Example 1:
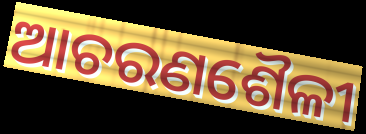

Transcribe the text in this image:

ଆଚରଣଶୈଳୀ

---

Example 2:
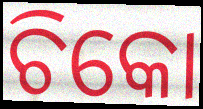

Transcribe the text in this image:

ଚିକୋ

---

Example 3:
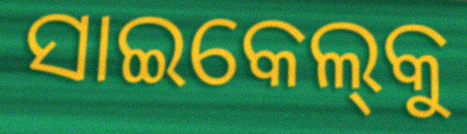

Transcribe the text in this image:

ସାଇକେଲ୍‌କୁ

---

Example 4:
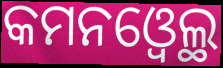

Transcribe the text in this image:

କମନଓ୍ବେଲ୍ଥ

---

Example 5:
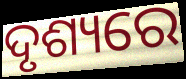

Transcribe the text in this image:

ଦୃଶ୍ୟରେ